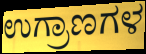
ಉಗ್ರಾಣಗಳ